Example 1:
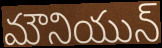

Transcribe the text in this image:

మౌనియున్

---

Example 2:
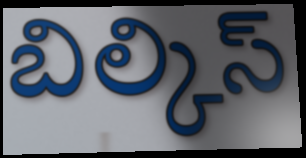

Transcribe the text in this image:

బిల్కిస్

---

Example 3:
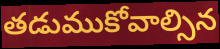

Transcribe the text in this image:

తడుముకోవాల్సిన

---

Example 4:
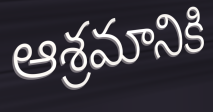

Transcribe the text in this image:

ఆశ్రమానికి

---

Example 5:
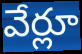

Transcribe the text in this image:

వేర్లూ